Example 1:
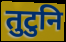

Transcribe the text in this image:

तुटुनि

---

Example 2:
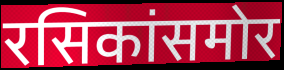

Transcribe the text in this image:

रसिकांसमोर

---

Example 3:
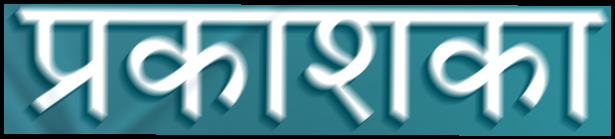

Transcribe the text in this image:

प्रकाशका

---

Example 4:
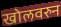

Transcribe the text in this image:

खोलवरुन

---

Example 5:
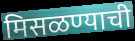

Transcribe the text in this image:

मिसळण्याची